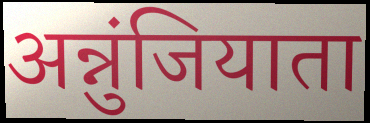
अन्नुंजियाता